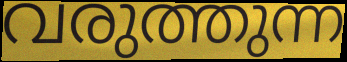
വരുത്തുന്ന